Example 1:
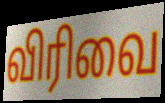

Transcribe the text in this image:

விரிவை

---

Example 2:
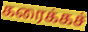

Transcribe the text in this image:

கரைக்கச்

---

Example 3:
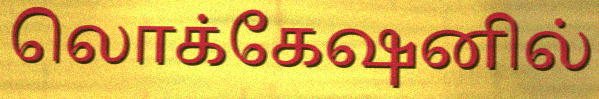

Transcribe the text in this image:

லொக்கேஷனில்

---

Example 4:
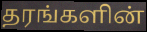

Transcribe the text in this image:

தரங்களின்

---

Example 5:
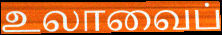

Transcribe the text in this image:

உலாவைப்